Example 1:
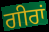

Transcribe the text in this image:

ਗੀਰਾਂ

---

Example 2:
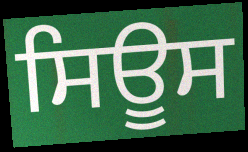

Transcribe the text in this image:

ਸਿਊਸ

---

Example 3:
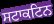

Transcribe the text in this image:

ਸਟਾਕਟਿਨ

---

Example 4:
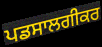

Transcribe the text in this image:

ਪਡਸਾਲਗੀਕਰ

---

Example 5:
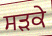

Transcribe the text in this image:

ਸਡ਼ਕੇ